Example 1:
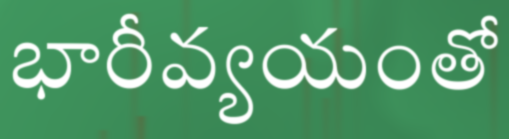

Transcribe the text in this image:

భారీవ్యయంతో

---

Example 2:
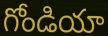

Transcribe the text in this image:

గోండియా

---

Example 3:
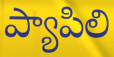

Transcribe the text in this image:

ప్యాపిలి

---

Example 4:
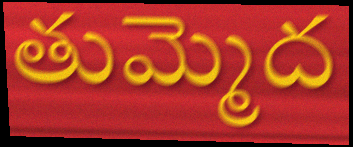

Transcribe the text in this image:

తుమ్మెద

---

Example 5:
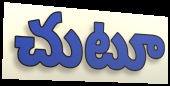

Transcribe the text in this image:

చుటూ